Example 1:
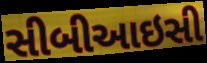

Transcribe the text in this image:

સીબીઆઇસી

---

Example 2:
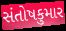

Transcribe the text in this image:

સંતોષકુમાર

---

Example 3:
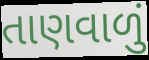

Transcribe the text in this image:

તાણવાળું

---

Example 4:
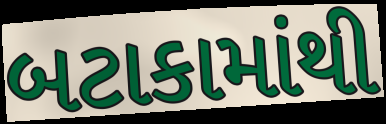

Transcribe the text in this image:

બટાકામાંથી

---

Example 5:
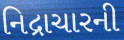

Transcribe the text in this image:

નિદ્રાચારની